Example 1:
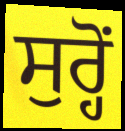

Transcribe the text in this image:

ਸੁਰ੍ਹੋਂ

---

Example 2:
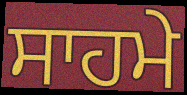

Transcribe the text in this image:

ਸਾਹਮੇ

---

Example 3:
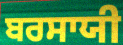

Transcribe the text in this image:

ਬਰਸਾਯੀ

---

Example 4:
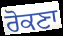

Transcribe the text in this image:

ਰੋਕਣਾ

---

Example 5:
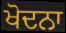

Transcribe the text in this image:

ਖੋਦਨਾ